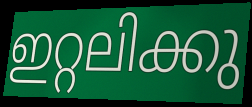
ഇറ്റലിക്കു